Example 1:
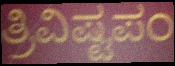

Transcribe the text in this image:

ತ್ರಿವಿಷ್ಟಪಂ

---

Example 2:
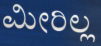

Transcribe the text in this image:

ಮೀರಿಲ್ಲ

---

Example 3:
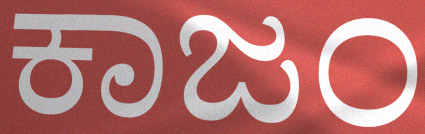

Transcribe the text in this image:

ಕಾಜಂ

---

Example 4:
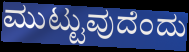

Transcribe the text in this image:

ಮುಟ್ಟುವುದೆಂದು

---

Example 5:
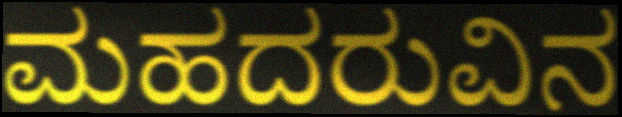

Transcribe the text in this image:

ಮಹದರುವಿನ